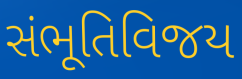
સંભૂતિવિજય